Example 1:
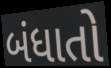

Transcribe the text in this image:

બંધાતો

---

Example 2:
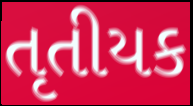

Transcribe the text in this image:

તૃતીયક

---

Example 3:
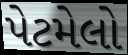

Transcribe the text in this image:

પેટમેલો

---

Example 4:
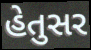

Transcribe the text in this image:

હેતુસર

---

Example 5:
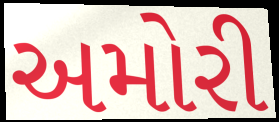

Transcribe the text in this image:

અમોરી